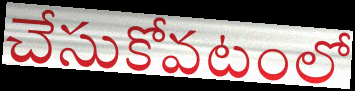
చేసుకోవటంలో